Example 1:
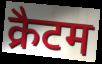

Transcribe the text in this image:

क्रैटम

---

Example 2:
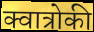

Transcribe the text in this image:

क्वात्रोकी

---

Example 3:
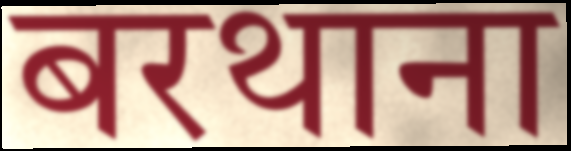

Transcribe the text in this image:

बरथाना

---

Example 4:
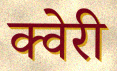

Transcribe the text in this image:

क्वेरी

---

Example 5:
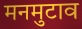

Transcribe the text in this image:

मनमुटाव